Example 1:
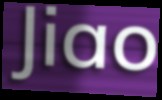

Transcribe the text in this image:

Jiao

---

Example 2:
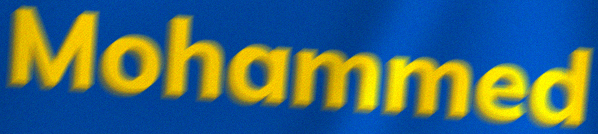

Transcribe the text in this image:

Mohammed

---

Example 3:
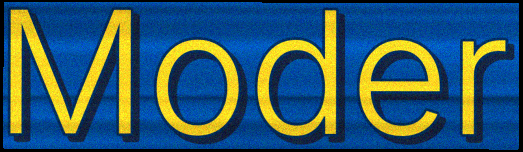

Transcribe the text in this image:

Moder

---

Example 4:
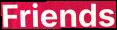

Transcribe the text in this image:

Friends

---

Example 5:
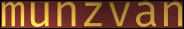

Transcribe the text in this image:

munzvan